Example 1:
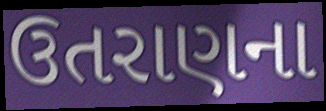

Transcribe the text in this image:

ઉતરાણના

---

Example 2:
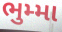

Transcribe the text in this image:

ભુમ્મા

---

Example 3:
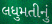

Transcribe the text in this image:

લધુમતીનું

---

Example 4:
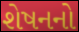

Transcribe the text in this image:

શેષનનો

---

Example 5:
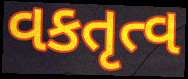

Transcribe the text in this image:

વકતૃત્વ